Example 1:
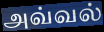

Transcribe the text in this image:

அவ்வல்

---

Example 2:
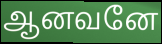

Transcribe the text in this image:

ஆனவனே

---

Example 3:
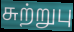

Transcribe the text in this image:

சுற்றுபு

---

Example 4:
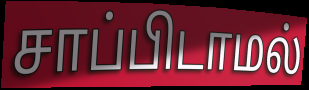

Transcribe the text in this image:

சாப்பிடாமல்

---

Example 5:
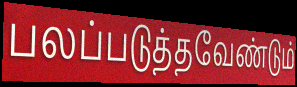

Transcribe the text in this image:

பலப்படுத்தவேண்டும்